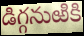
డిగ్గనుఱికి